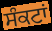
ਸੰਕਟਾਂ